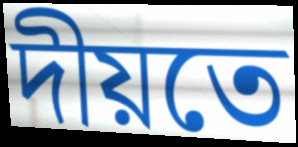
দীয়তে